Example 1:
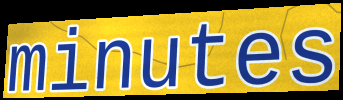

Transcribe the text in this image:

minutes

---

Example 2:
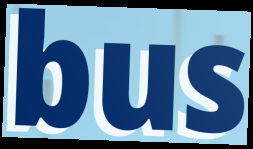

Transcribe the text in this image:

bus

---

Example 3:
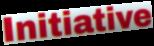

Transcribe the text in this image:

Initiative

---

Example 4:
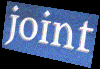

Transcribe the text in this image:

joint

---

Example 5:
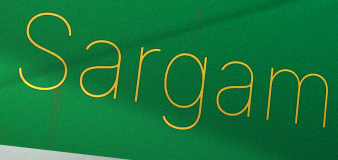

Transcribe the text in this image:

Sargam